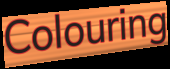
Colouring